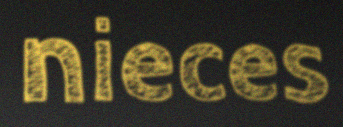
nieces